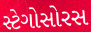
સ્ટેગોસોરસ